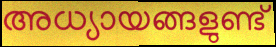
അധ്യായങ്ങളുണ്ട്